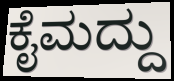
ಕೈಮದ್ದು